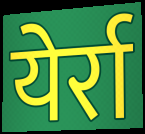
येर्रा